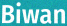
Biwan